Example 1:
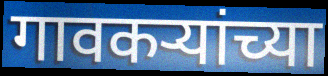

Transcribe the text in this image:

गावकऱ्यांच्या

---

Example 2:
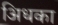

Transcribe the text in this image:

अिधका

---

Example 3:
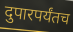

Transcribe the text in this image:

दुपारपर्यंतच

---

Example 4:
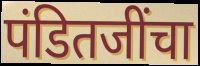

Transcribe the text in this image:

पंडितजींचा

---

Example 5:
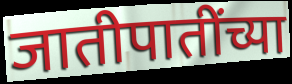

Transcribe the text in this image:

जातीपातींच्या